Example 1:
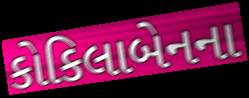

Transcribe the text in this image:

કોકિલાબેનના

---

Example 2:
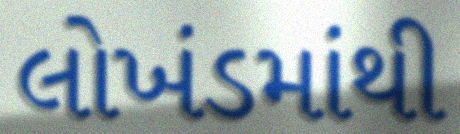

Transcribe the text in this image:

લોખંડમાંથી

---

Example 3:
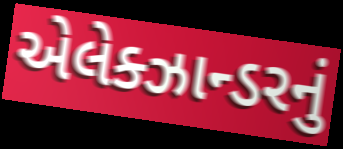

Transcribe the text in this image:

એલેક્ઝાન્ડરનું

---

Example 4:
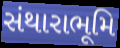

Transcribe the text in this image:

સંથારાભૂમિ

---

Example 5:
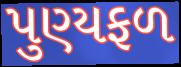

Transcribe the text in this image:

પુણ્યફળ